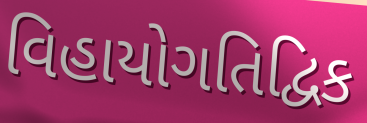
વિહાયોગતિદ્વિક